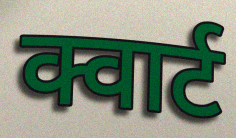
क्वार्ट